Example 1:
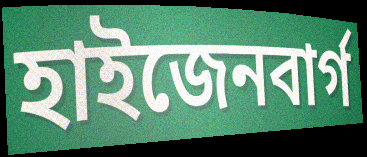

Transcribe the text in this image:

হাইজেনবার্গ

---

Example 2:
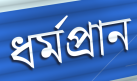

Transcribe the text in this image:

ধর্মপ্রান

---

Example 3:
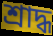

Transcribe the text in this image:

শ্রাদ্ধ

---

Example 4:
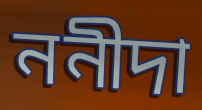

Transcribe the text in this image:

ননীদা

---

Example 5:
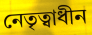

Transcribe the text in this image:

নেতৃত্বাধীন